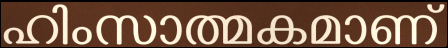
ഹിംസാത്മകമാണ്